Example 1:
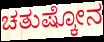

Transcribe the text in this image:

ಚತುಷ್ಕೋನ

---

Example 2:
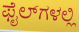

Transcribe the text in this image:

ಫೈಲ್‌ಗಳಲ್ಲಿ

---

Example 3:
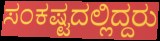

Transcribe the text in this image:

ಸಂಕಷ್ಟದಲ್ಲಿದ್ದರು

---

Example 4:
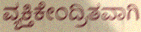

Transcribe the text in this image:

ವ್ಯಕ್ತಿಕೇಂದ್ರಿತವಾಗಿ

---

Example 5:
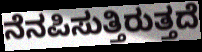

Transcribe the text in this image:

ನೆನಪಿಸುತ್ತಿರುತ್ತದೆ